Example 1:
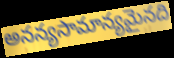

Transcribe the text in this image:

అనన్యసామాన్యమైనది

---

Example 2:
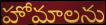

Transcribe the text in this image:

హోమాలను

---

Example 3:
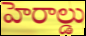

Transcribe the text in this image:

హెరాల్డు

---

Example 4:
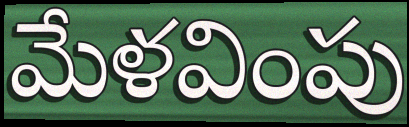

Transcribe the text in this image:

మేళవింపు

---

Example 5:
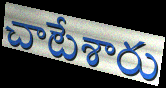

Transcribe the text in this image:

చాటేశారు